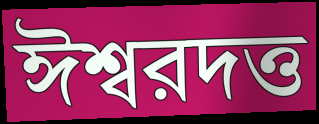
ঈশ্বরদত্ত